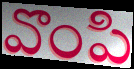
వొంపి